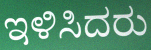
ಇಳಿಸಿದರು